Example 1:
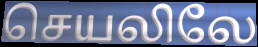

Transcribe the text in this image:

செயலிலே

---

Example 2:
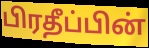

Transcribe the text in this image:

பிரதீப்பின்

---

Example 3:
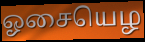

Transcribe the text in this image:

ஓசையெழ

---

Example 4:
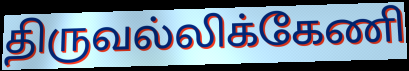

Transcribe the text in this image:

திருவல்லிக்கேணி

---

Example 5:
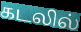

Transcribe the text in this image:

கடலில்